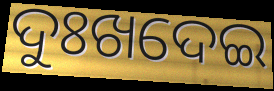
ଦୁଃଖଦେଇ